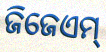
ଜିଜେଏମ୍